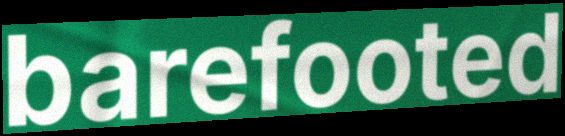
barefooted